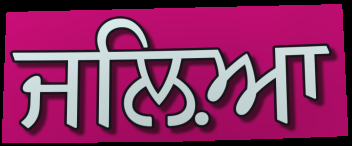
ਜਲ਼ਿਆ